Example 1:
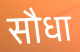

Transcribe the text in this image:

सौधा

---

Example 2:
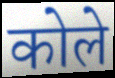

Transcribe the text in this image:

कोले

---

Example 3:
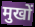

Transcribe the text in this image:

मुखों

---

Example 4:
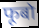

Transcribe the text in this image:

फूबो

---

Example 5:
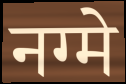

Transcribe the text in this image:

नग्मे